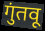
गुंतवू